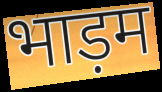
भाड़म